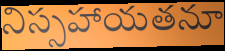
నిస్సహాయతనూ